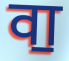
वा॒